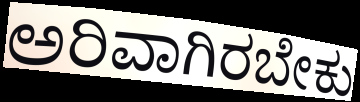
ಅರಿವಾಗಿರಬೇಕು